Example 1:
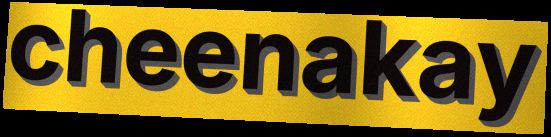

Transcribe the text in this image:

cheenakay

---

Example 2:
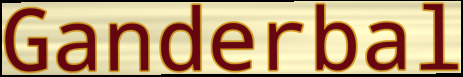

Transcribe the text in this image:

Ganderbal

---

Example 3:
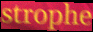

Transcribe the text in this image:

strophe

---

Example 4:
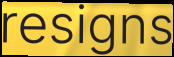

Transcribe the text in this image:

resigns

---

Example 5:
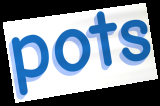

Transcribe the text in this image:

pots